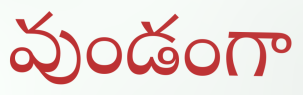
వుండంగా